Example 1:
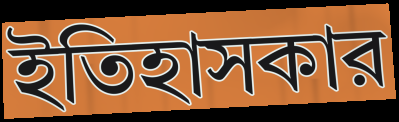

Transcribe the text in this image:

ইতিহাসকার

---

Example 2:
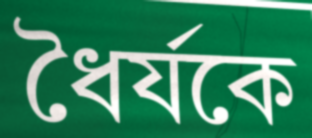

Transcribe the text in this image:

ধৈর্যকে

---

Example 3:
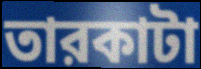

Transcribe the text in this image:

তারকাটা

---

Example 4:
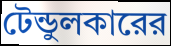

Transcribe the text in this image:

টেন্ডুলকারের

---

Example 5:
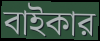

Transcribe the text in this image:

বাইকার